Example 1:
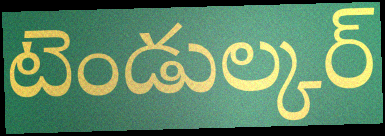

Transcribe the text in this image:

టెండుల్కర్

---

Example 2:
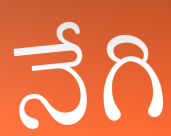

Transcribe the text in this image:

నేగి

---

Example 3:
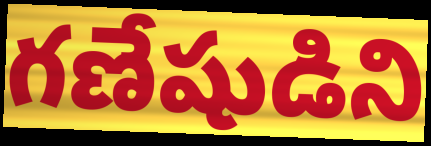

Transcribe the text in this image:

గణేషుడిని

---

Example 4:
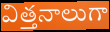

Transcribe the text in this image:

విత్తనాలుగా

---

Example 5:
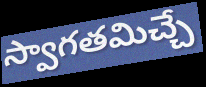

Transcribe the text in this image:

స్వాగతమిచ్చే